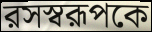
রসস্বরূপকে